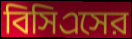
বিসিএসের